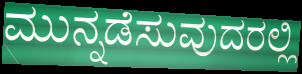
ಮುನ್ನಡೆಸುವುದರಲ್ಲಿ